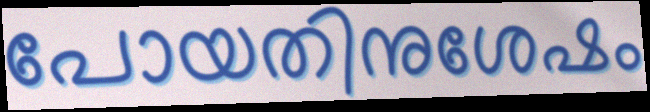
പോയതിനുശേഷം